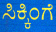
ಸಿಕ್ಕಿಂಗೆ